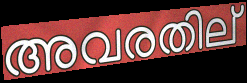
അവരതില്